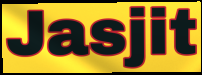
Jasjit